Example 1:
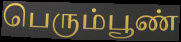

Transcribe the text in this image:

பெரும்பூண்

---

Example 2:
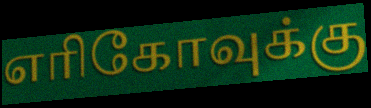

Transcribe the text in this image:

எரிகோவுக்கு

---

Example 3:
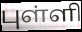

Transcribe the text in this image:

புள்ளி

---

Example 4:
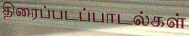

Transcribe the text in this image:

திரைப்படப்பாடல்கள்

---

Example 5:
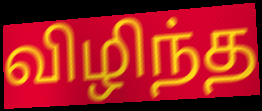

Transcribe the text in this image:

விழிந்த